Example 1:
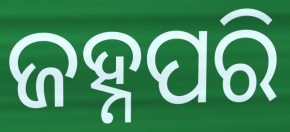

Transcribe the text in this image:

ଜହ୍ନପରି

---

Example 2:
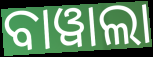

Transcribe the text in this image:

ବାୱାଲା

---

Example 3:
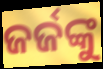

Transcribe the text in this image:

ଜର୍ଜଙ୍କୁ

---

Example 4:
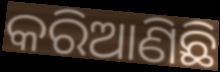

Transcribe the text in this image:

କରିଆଣିଛି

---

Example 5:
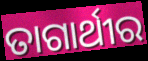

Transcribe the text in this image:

ତାଗାର୍ଥୀର